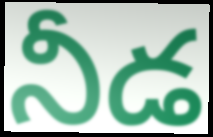
నీడ